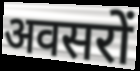
अवसरों